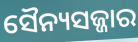
ସୈନ୍ୟସଜ୍ଜାର